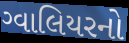
ગ્વાલિયરનો